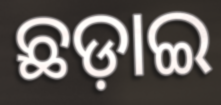
ଛଡ଼ାଇ